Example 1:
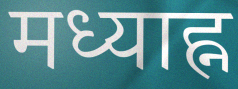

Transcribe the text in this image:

मध्याह्न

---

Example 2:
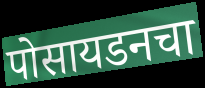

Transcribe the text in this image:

पोसायडनचा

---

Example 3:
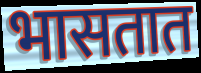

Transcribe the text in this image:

भासतात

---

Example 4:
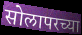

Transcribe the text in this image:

सोलापरच्या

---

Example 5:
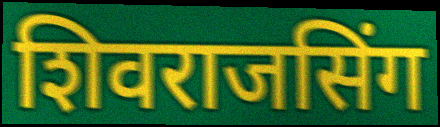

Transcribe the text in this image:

शिवराजसिंग